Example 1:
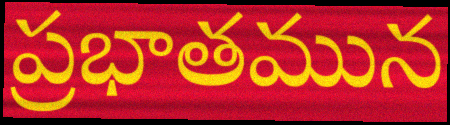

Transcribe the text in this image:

ప్రభాతమున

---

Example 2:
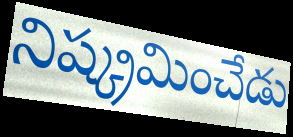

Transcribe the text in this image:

నిష్క్రమించేడు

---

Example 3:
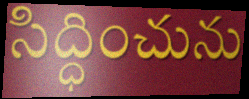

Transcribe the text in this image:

సిద్ధించును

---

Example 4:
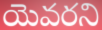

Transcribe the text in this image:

యెవరని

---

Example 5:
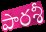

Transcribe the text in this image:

పారశీ